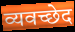
व्यवच्छेद